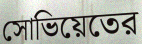
সোভিয়েতের